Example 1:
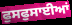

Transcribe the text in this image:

ਫੁਸਫੁਸਾਈਆਂ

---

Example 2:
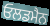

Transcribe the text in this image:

ਓਲਡਮੈਨ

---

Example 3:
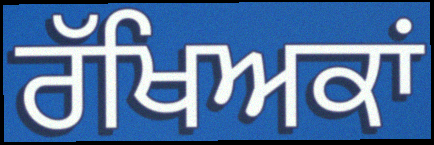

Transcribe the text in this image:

ਰੱਖਿਅਕਾਂ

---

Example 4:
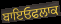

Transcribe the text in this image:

ਬਾਇਓਫਲਾਕ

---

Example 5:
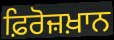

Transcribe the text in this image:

ਫ਼ਿਰੋਜ਼ਖ਼ਾਨ